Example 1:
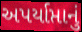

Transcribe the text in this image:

અપર્યાપ્તાનું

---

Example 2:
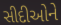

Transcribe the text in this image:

સીદીઓને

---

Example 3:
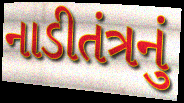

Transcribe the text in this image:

નાડીતંત્રનું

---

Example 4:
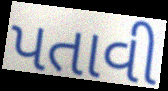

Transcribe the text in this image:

પતાવી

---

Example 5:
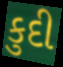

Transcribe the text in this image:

કુદી